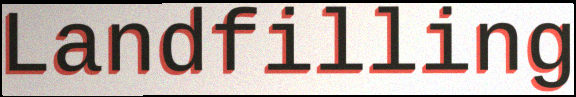
Landfilling